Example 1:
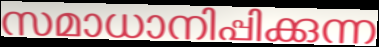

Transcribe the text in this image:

സമാധാനിപ്പിക്കുന്ന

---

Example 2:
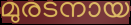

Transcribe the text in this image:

മുരടനായ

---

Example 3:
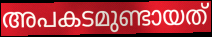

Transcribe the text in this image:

അപകടമുണ്ടായത്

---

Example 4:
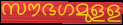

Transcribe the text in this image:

സൗഭഗമുളള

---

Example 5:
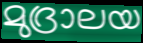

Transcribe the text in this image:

മുദ്രാലയ